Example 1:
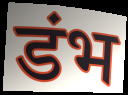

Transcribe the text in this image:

डंभ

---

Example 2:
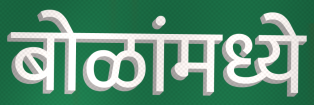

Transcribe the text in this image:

बोळांमध्ये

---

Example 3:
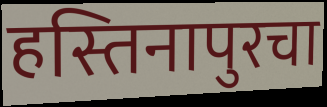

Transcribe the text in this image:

हस्तिनापुरचा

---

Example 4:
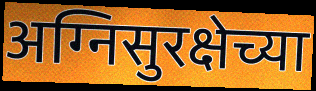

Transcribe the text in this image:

अग्निसुरक्षेच्या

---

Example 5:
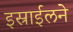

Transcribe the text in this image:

इस्राईलने